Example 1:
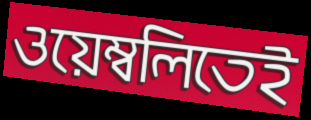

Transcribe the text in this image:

ওয়েম্বলিতেই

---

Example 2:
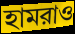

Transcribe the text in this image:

হামরাও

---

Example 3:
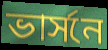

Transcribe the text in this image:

ভার্সনে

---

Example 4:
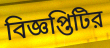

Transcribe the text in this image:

বিজ্ঞপ্তিটির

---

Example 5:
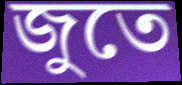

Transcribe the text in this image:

জুতে